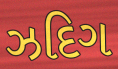
ઝદિગ